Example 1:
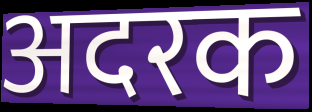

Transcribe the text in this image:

अदरक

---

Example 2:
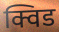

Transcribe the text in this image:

क्विड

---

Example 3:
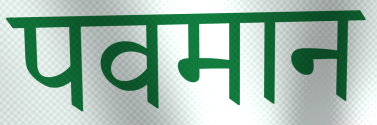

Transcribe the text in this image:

पवमान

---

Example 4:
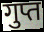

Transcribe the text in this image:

गुप्त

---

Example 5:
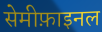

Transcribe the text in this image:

सेमीफ़ाइनल